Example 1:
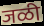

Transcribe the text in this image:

जळी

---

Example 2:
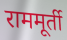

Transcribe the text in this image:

राममूर्ती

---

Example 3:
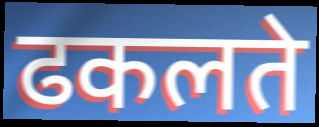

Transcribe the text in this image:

ढकलते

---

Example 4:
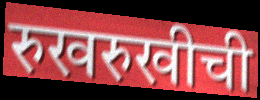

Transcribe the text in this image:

रुखरुखीची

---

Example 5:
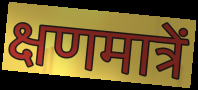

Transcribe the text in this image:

क्षणमात्रें